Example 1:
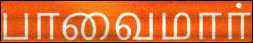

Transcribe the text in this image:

பாவைமார்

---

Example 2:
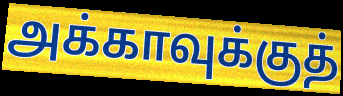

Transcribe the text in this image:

அக்காவுக்குத்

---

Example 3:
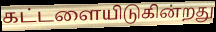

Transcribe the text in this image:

கட்டளையிடுகின்றது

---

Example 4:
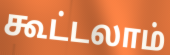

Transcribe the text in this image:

கூட்டலாம்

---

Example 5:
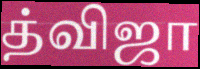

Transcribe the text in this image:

த்விஜா